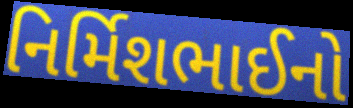
નિર્મિશભાઈનો